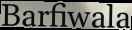
Barfiwala